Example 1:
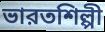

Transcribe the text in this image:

ভারতশিল্পী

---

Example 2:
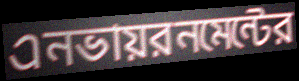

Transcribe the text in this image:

এনভায়রনমেন্টের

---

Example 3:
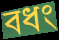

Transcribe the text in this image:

বধং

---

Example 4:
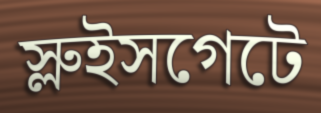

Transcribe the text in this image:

স্লুইসগেটে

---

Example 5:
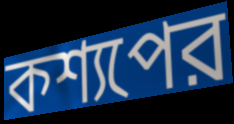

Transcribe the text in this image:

কশ্যপের